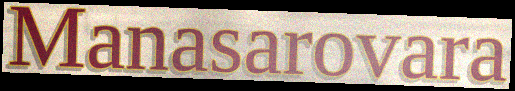
Manasarovara